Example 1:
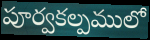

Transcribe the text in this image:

పూర్వకల్పములో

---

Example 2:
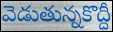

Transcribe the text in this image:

వెడుతున్నకొద్దీ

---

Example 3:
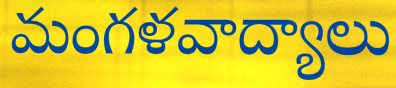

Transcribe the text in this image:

మంగళవాద్యాలు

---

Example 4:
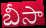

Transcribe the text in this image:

బీసా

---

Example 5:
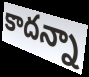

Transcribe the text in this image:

కాదన్నా